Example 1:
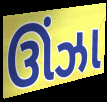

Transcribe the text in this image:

ઊંઝા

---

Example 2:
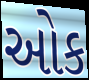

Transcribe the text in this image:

ઓક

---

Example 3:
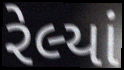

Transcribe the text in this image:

રેલ્યાં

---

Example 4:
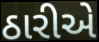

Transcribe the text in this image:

ઠારીએ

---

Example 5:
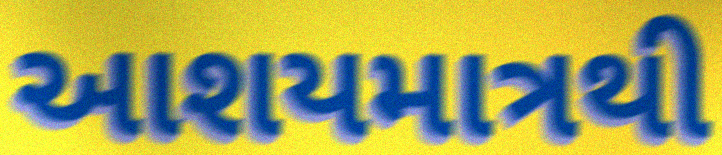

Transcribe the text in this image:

આશયમાત્રથી